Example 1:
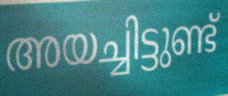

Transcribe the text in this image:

അയച്ചിട്ടുണ്ട്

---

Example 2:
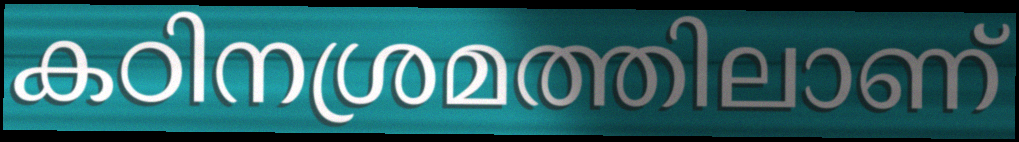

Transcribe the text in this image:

കഠിനശ്രമത്തിലാണ്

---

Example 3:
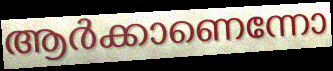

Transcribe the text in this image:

ആർക്കാണെന്നോ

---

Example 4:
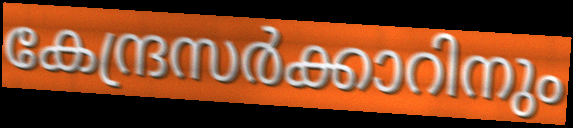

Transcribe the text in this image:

കേന്ദ്രസർക്കാറിനും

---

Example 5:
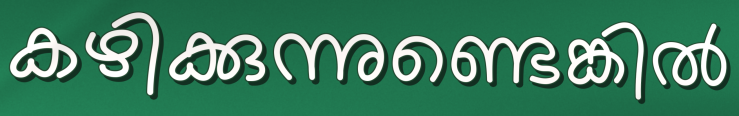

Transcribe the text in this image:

കഴിക്കുന്നുണ്ടെങ്കിൽ